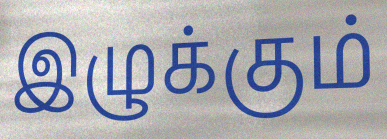
இழுக்கும்